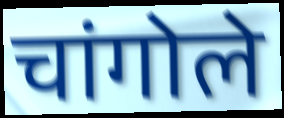
चांगोले